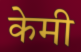
केमी